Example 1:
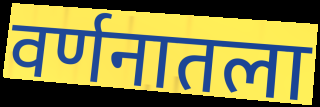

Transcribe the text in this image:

वर्णनातला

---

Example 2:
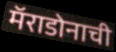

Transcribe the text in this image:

मॅराडोनाची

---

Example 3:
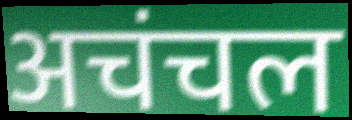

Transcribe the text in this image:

अचंचल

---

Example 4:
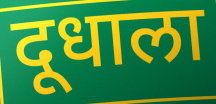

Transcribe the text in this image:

दूधाला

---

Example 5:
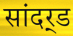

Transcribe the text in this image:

सांदर्ड